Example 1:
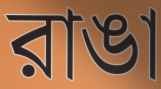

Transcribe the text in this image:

রাঙা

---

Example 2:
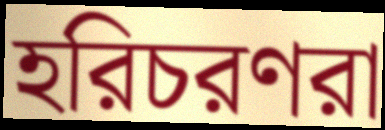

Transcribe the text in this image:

হরিচরণরা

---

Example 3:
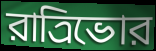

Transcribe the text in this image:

রাত্রিভোর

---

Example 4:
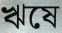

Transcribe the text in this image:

ঋষে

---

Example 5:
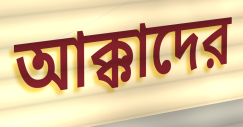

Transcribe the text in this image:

আক্কাদের